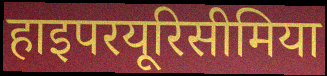
हाइपरयूरिसीमिया